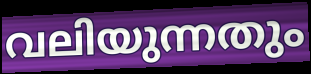
വലിയുന്നതും